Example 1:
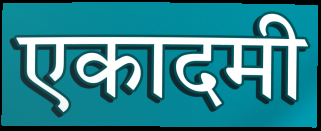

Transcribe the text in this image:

एकादमी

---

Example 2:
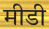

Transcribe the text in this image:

मीडी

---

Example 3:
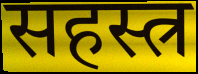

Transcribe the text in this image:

सहस्‍त्र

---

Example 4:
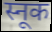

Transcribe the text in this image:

स्नूक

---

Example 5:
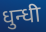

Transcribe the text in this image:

धुन्धी